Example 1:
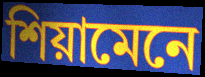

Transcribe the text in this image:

শিয়ামেনে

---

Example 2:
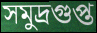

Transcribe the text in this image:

সমুদ্রগুপ্ত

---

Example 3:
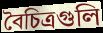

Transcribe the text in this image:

বৈচিত্রগুলি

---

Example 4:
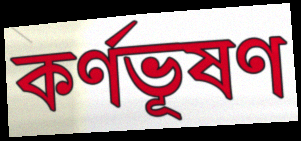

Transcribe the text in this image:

কর্ণভূষণ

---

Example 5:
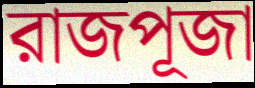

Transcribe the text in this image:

রাজপূজা